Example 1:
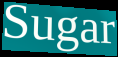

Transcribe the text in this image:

Sugar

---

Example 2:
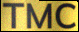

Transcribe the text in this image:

TMC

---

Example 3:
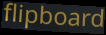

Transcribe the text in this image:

flipboard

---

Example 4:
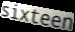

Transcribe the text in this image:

sixteen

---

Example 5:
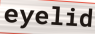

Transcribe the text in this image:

eyelid